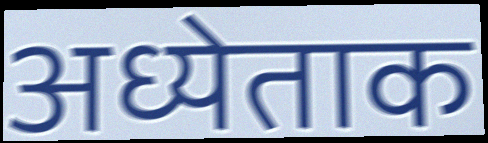
अध्येताक